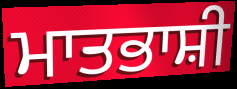
ਮਾਤਭਾਸ਼ੀ